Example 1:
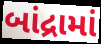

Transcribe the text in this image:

બાંદ્રામાં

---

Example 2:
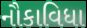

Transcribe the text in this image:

નૌકાવિધા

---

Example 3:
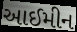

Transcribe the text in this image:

આઈમીન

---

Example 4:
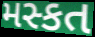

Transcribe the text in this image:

મસ્કત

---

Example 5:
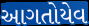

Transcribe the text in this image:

આગતોયેવ